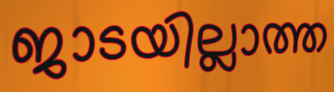
ജാടയില്ലാത്ത